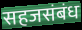
सहजसंबंध